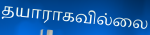
தயாராகவில்லை